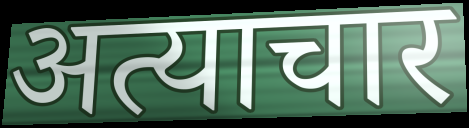
अत्याचार